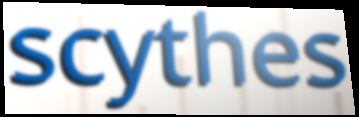
scythes